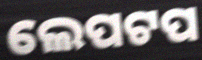
ଲେପଟପ